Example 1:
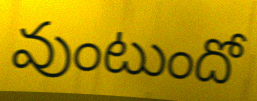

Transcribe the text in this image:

వుంటుందో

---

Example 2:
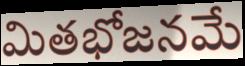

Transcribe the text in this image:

మితభోజనమే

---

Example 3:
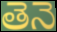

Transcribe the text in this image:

తెనె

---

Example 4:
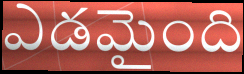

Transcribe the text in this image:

ఎడమైంది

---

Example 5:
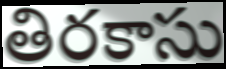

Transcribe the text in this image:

తిరకాసు